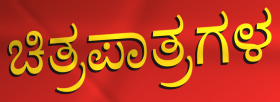
ಚಿತ್ರಪಾತ್ರಗಳ